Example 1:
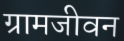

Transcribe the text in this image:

ग्रामजीवन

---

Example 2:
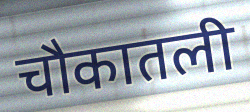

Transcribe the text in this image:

चौकातली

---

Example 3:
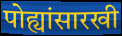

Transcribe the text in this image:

पोह्यांसारखी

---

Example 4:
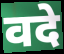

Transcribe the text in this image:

वदे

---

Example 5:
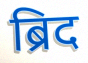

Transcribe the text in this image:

ब्रिद